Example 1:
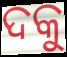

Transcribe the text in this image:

ଦକୁ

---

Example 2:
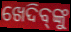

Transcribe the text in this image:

ଖେଦିବ୍‌ଙ୍କୁ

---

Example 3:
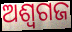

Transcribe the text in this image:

ଅଶ୍ୱଗଜ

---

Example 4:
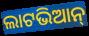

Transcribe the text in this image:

ଲାଟଭିଆନ୍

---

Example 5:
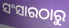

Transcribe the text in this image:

ସଂସାରଠାରୁ